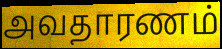
அவதாரணம்